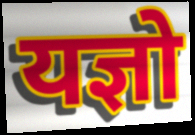
यज्ञो